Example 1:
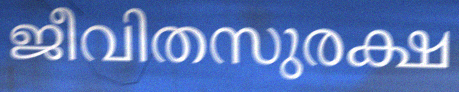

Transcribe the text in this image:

ജീവിതസുരക്ഷ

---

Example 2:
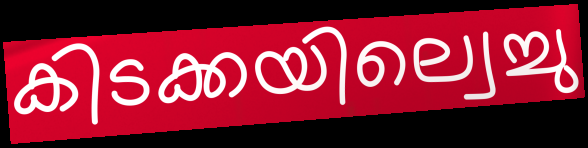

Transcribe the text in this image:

കിടക്കയില്വെച്ചു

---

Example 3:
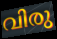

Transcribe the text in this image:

വിരു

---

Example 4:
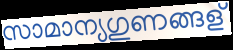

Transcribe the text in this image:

സാമാന്യഗുണങ്ങള്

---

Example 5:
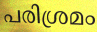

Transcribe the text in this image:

പരിശ്രമം